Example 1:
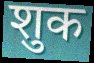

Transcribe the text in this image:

शुक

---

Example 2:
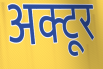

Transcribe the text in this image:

अक्टूर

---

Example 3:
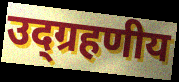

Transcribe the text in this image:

उद्ग्रहणीय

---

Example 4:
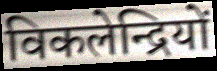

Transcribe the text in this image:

विकलेन्द्रियों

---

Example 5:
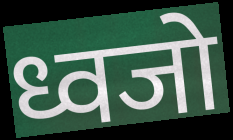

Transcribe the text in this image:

ध्वजो